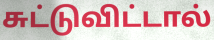
சுட்டுவிட்டால்